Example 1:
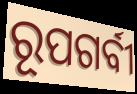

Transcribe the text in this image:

ରୂପଗର୍ବୀ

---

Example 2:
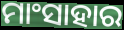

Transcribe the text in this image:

ମାଂସାହାର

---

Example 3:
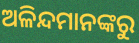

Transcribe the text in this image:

ଅଳିନ୍ଦମାନଙ୍କରୁ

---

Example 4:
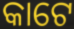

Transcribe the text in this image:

କାଟେ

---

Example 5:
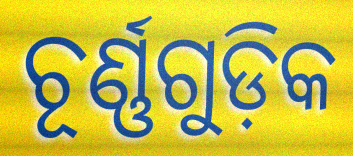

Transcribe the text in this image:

ଚୂର୍ଣ୍ଣଗୁଡ଼ିକ